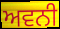
ਅਵਨੀ